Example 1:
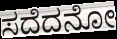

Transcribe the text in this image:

ಸದೆದನೋ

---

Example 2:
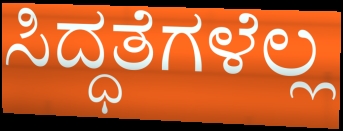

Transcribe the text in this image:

ಸಿದ್ಧತೆಗಳೆಲ್ಲ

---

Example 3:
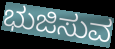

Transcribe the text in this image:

ಭುಜಿಸುವ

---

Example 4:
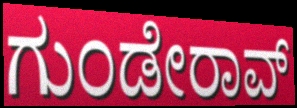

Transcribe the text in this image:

ಗುಂಡೇರಾವ್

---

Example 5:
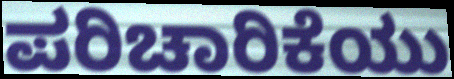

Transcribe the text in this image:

ಪರಿಚಾರಿಕೆಯು